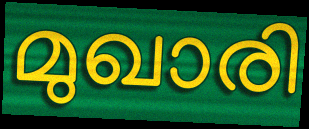
മുഖാരി